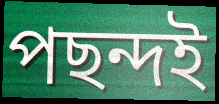
পছন্দই